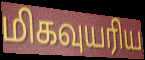
மிகவுயரிய